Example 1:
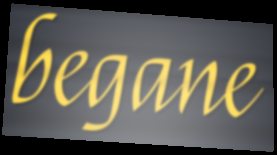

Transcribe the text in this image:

begane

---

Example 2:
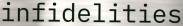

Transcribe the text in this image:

infidelities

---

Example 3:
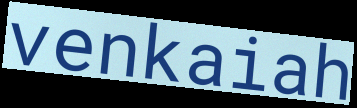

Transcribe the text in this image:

venkaiah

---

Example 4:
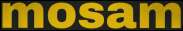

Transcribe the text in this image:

mosam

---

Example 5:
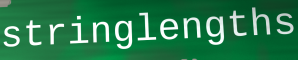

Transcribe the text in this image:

stringlengths